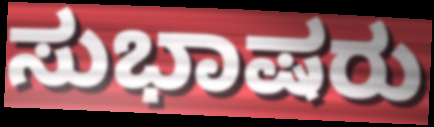
ಸುಭಾಷರು